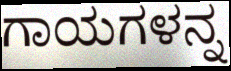
ಗಾಯಗಳನ್ನ